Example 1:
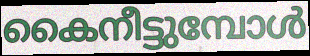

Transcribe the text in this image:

കൈനീട്ടുമ്പോൾ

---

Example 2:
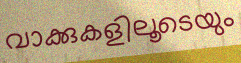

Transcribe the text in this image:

വാക്കുകളിലൂടെയും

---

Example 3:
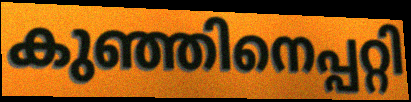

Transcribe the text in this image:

കുഞ്ഞിനെപ്പറ്റി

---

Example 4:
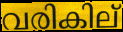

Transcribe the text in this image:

വരികില്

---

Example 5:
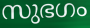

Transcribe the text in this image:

സുഭഗം